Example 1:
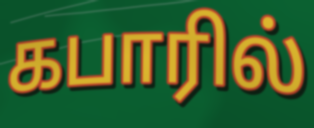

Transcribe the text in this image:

கபாரில்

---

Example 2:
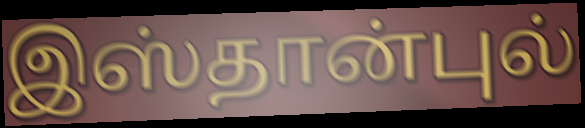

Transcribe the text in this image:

இஸ்தான்புல்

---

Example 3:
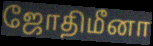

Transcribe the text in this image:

ஜோதிமீனா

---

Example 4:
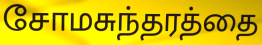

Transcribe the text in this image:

சோமசுந்தரத்தை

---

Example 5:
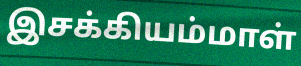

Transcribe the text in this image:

இசக்கியம்மாள்